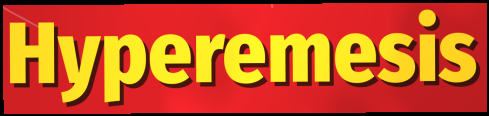
Hyperemesis